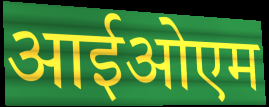
आईओएम